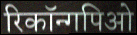
रिकॉन्गपिओ